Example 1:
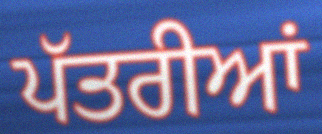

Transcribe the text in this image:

ਪੱਤਰੀਆਂ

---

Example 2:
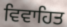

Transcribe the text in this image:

ਵਿਵਾਹਿਤ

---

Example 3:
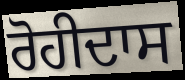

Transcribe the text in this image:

ਰੋਹੀਦਾਸ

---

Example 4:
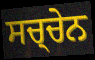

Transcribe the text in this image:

ਸਚ੍ਚੇਨ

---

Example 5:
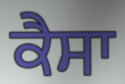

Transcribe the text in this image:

ਕੈਸਾ